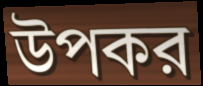
উপকর